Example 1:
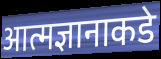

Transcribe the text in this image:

आत्मज्ञानाकडे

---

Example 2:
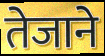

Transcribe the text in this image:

तेजाने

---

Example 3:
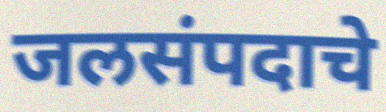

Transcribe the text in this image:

जलसंपदाचे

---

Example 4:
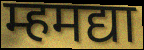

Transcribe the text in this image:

म्हमद्या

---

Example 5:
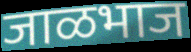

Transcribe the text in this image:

जाळभाज